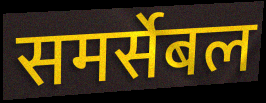
समर्सेबल